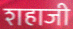
शहाजी